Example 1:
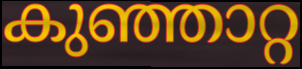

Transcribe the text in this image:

കുഞ്ഞാറ്റ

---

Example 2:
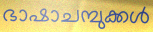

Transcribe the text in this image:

ഭാഷാചമ്പുക്കൾ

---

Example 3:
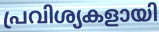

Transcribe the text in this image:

പ്രവിശ്യകളായി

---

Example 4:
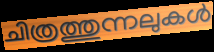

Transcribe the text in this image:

ചിത്രത്തുന്നലുകൾ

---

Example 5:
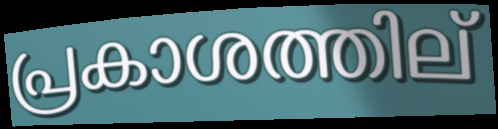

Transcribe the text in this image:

പ്രകാശത്തില്